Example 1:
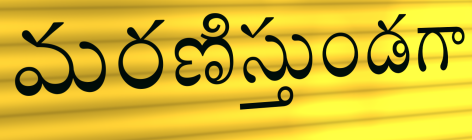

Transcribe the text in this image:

మరణిస్తుండగా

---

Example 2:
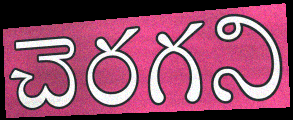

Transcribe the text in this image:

చెరగని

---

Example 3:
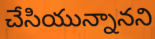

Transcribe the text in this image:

చేసియున్నానని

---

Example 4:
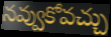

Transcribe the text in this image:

నవ్వుకోవచ్చు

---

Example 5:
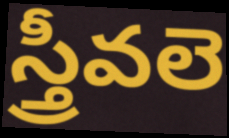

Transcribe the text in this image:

స్త్రీవలె